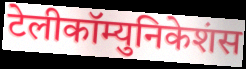
टेलीकॉम्युनिकेशंस